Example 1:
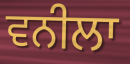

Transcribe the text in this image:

ਵਨੀਲਾ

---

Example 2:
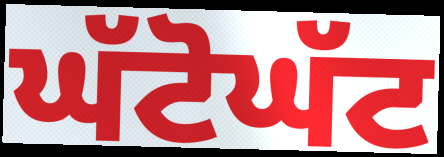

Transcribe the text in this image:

ਘੱਟੋਘੱਟ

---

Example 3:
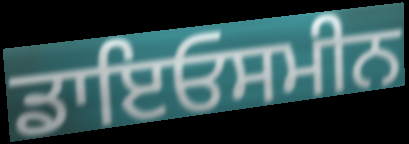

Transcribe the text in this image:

ਡਾਇਓਸਮੀਨ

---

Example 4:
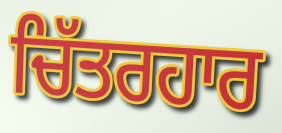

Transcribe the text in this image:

ਚਿੱਤਰਹਾਰ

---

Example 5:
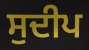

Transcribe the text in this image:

ਸੁਦੀਪ